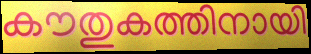
കൗതുകത്തിനായി